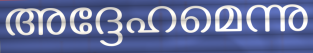
അദ്ദേഹമെന്നു